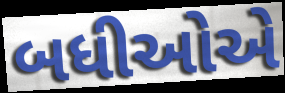
બધીઓએ